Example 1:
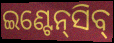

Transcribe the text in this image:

ଇଣ୍ଟେନ୍‍ସିବ୍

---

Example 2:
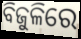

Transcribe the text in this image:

ବିଜୁଳିରେ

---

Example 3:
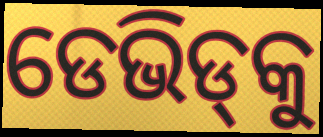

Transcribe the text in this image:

ଡେଭିଡ୍‍କୁ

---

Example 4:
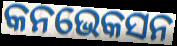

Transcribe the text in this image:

କନଭେକସନ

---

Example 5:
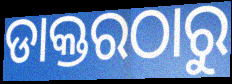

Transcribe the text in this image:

ଡାକ୍ତରଠାରୁ